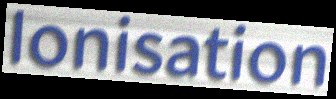
Ionisation